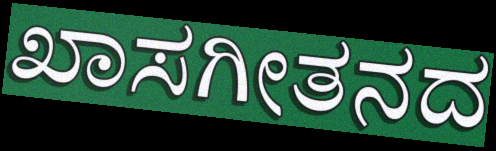
ಖಾಸಗೀತನದ